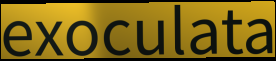
exoculata